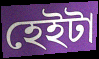
হেইটা